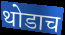
थोडाच